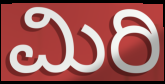
ಮಿರಿ